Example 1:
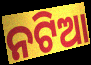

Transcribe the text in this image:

ନଟିଆ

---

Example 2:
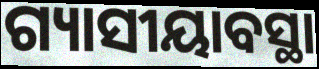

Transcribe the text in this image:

ଗ୍ୟାସୀୟାବସ୍ଥା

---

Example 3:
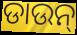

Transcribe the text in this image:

ଡାଉନ୍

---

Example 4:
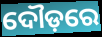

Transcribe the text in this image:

ଦୌଡ଼ରେ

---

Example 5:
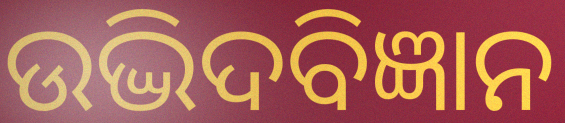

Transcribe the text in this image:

ଉଦ୍ଭିଦବିଜ୍ଞାନ